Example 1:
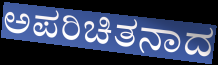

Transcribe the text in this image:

ಅಪರಿಚಿತನಾದ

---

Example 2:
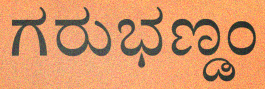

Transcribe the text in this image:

ಗರುಭಣ್ಡಂ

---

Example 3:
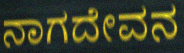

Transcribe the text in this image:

ನಾಗದೇವನ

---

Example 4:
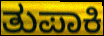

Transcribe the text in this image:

ತುಪಾಕಿ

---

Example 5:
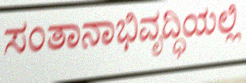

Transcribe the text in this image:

ಸಂತಾನಾಭಿವೃದ್ಧಿಯಲ್ಲಿ